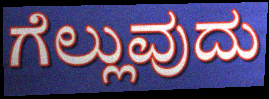
ಗೆಲ್ಲುವುದು